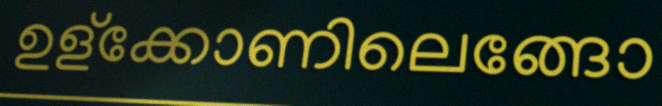
ഉള്ക്കോണിലെങ്ങോ